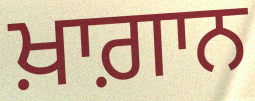
ਖ਼ਾਗ਼ਾਨ